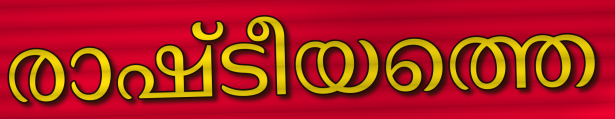
രാഷ്ടീയത്തെ